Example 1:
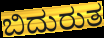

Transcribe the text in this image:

ಬಿದುರುತ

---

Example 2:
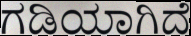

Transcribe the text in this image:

ಗಡಿಯಾಗಿದೆ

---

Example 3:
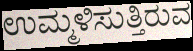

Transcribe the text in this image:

ಉಮ್ಮಳಿಸುತ್ತಿರುವ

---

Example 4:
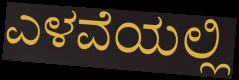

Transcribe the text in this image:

ಎಳವೆಯಲ್ಲಿ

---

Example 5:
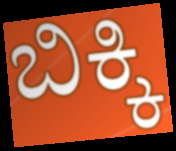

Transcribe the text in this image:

ಬಿಕ್ಕಿ